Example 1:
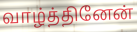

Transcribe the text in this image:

வாழ்த்தினேன்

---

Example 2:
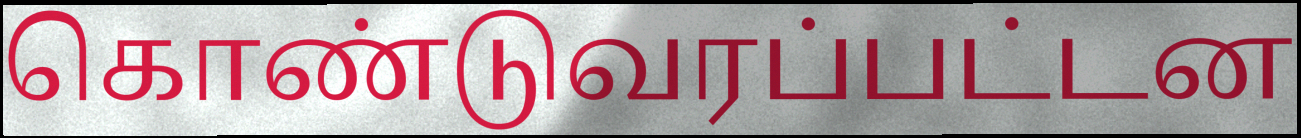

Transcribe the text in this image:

கொண்டுவரப்பட்டன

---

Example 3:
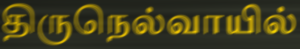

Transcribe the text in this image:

திருநெல்வாயில்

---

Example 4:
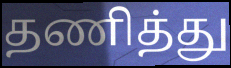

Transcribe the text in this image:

தணித்து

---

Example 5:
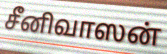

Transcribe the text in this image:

சீனிவாஸன்